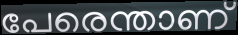
പേരെന്താണ്